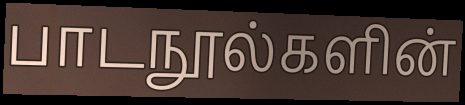
பாடநூல்களின்